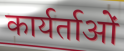
कार्यर्ताओं